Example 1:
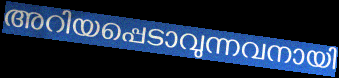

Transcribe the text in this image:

അറിയപ്പെടാവുന്നവനായി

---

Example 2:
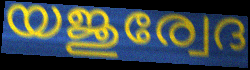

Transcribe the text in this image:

യജുര്വേദ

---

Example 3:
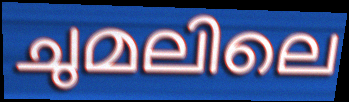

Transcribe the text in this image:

ചുമലിലെ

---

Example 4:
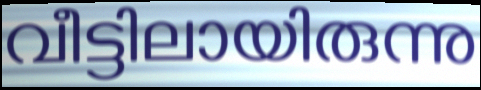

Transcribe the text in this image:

വീട്ടിലായിരുന്നു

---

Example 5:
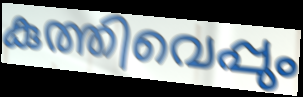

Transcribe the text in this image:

കുത്തിവെപ്പും